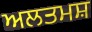
ਅਲਤਮਸ਼